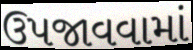
ઉપજાવવામાં